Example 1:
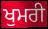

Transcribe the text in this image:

ਖੁਮਰੀ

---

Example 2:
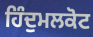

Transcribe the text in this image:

ਹਿੰਦੁਮਲਕੋਟ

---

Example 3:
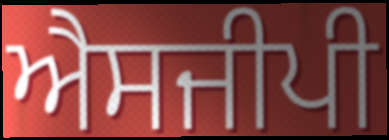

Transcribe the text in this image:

ਐਸਜੀਪੀ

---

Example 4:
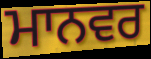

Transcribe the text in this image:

ਮਾਨਵਰ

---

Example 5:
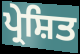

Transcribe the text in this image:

ਪ੍ਰੇਸ਼ਿਤ